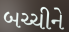
બચ્ચીને